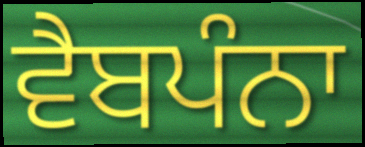
ਵੈਬਪੰਨਾ